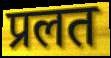
प्रलत